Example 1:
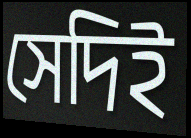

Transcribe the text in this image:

সেদিই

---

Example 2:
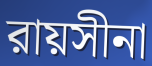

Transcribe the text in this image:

রায়সীনা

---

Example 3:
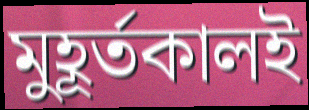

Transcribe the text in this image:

মুহূর্তকালই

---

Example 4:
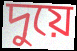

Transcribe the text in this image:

দুয়ে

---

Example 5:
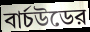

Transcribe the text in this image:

বার্চউডের